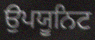
ਉਪਯੂਨਿਟ